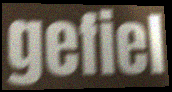
gefiel